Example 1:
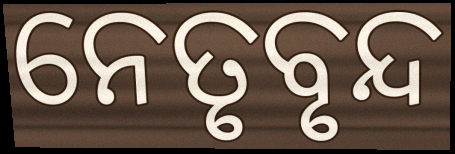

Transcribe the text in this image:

ନେତୃବୃନ୍ଦ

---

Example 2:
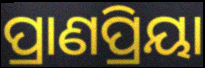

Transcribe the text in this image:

ପ୍ରାଣପ୍ରିୟା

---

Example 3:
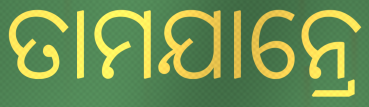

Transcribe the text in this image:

ତାମଯାନ୍ରେ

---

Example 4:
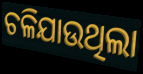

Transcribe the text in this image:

ଚଳିଯାଉଥିଲା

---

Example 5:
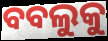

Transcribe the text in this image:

ବବଲୁକୁ